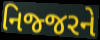
નિજ્જરને